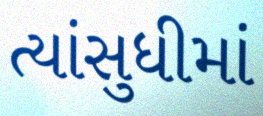
ત્યાંસુધીમાં